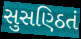
સુસણ્ઠિતં